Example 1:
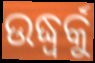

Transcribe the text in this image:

ଉଦ୍ଧ୍ୱର୍କୁ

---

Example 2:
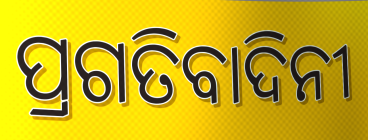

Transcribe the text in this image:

ପ୍ରଗତିବାଦିନୀ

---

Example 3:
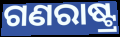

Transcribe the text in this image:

ଗଣରାଷ୍ଟ୍ର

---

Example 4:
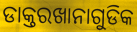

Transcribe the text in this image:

ଡାକ୍ତରଖାନାଗୁଡିକ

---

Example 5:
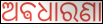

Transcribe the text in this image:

ଅଵଧାରଣା